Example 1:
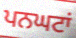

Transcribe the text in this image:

ਪਨਘਟਾਂ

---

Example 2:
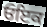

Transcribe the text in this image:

ਓਇਕ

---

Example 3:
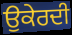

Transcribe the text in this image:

ਉਕੇਰਦੀ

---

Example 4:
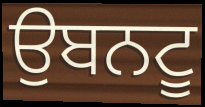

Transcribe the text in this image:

ਉਬਨਟੂ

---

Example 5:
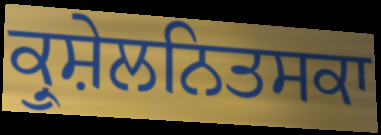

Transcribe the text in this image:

ਕ੍ਰੁਸ਼ੇਲਨਿਤਸਕਾ